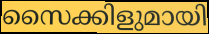
സൈക്കിളുമായി